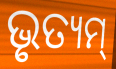
ଭୃତ୍ୟମ୍